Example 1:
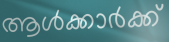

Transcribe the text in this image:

ആൾക്കാർക്ക്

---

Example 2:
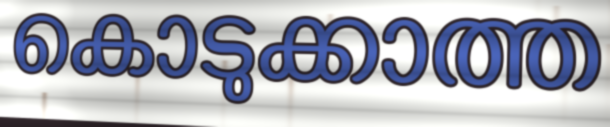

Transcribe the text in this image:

കൊടുക്കാത്ത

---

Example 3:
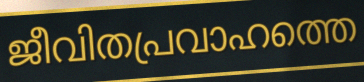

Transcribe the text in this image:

ജീവിതപ്രവാഹത്തെ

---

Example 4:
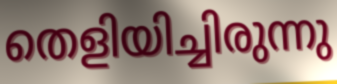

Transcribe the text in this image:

തെളിയിച്ചിരുന്നു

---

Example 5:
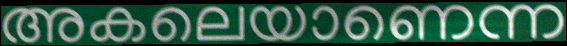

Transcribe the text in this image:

അകലെയാണെന്ന